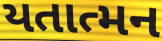
યતાત્મન